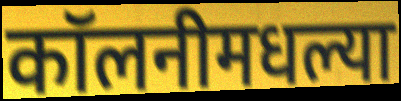
कॉलनीमधल्या